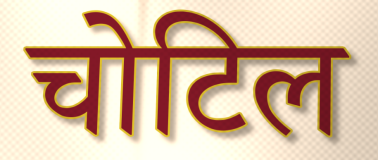
चोटिल